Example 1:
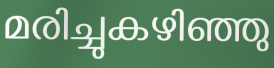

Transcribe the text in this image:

മരിച്ചുകഴിഞ്ഞു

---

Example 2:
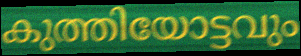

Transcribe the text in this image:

കുത്തിയോട്ടവും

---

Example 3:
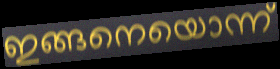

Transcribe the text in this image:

ഇങ്ങനെയൊന്ന്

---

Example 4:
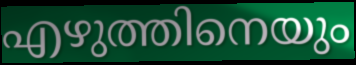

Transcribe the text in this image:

എഴുത്തിനെയും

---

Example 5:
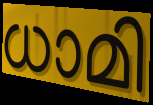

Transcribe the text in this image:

ധാമി